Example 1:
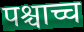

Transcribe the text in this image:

पश्चाच्च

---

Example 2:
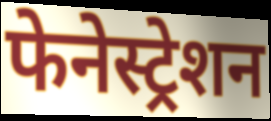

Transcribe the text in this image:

फेनेस्ट्रेशन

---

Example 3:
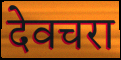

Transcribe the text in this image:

देवचरा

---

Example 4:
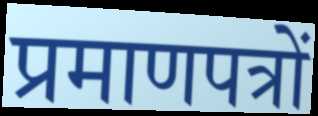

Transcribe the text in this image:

प्रमाणपत्रों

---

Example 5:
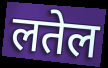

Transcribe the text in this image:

लतेल